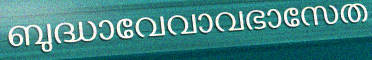
ബുദ്ധാവേവാവഭാസേത